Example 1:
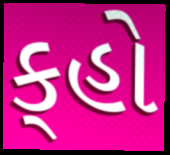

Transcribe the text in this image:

ક્‌હો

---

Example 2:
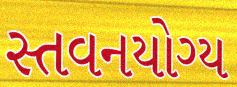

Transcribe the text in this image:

સ્તવનયોગ્ય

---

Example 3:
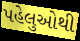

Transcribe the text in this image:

પહેલુઓથી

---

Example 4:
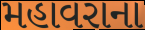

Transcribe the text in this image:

મહાવરાના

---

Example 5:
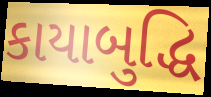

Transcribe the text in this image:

કાયાબુદ્ધિ